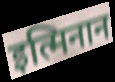
इत्मिनान